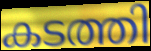
കടത്തി